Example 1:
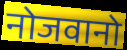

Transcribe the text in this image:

नोजवानो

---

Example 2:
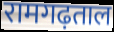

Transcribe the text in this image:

रामगढ़ताल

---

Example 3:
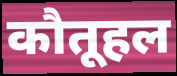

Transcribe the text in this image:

कौतूहल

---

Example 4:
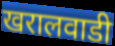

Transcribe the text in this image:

खरालवाडी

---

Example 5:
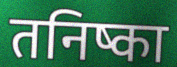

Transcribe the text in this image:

तनिष्का